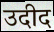
उदीद